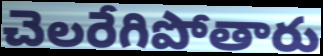
చెలరేగిపోతారు